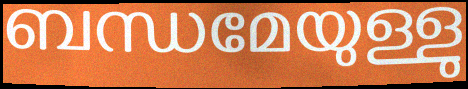
ബന്ധമേയുള്ളു